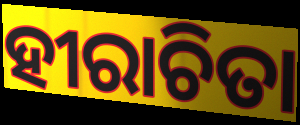
ହୀରାଚିତା